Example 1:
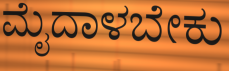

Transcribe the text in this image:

ಮೈದಾಳಬೇಕು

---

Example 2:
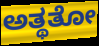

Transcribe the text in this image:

ಅತ್ಥತೋ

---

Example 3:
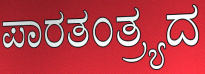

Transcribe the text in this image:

ಪಾರತಂತ್ರ್ಯದ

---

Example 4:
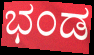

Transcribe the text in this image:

ಭಂಡ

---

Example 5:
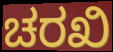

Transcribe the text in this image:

ಚರಖಿ